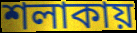
শলাকায়